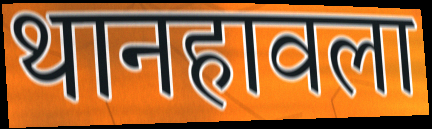
थानहावला